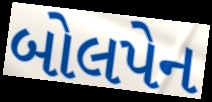
બોલપેન